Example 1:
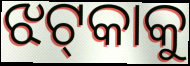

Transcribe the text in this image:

ଝଟ୍‌କାକୁ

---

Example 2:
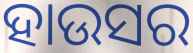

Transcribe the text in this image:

ହାଉସର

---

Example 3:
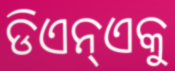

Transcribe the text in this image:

ଡିଏନ୍ଏକୁ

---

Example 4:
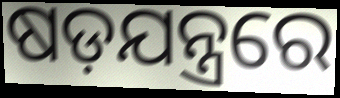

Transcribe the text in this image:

ଷଡ଼ଯନ୍ତ୍ରରେ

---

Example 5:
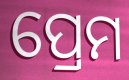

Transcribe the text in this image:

ପ୍ରେମ